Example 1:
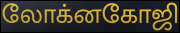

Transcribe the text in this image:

லோக்னகோஜி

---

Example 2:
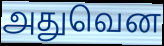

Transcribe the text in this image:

அதுவென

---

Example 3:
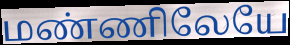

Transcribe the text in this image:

மண்ணிலேயே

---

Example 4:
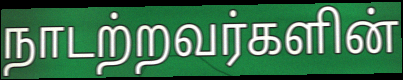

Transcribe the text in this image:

நாடற்றவர்களின்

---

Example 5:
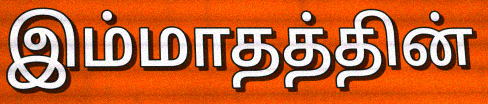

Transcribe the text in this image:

இம்மாதத்தின்